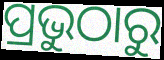
ପ୍ରଭୁଠାରୁ